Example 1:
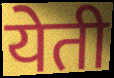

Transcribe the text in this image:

येती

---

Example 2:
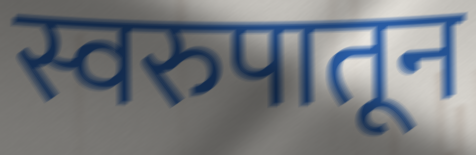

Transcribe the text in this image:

स्वरुपातून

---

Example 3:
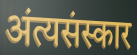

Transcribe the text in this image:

अंत्यसंस्कार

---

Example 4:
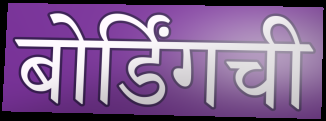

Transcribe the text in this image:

बोर्डिंगची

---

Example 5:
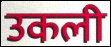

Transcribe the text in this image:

उकली